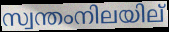
സ്വന്തംനിലയില്